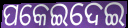
ପକେଇଦେଇ